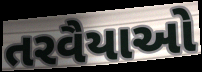
તરવૈયાઓ